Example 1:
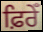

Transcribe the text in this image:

ਫ਼ਿਰੇਁ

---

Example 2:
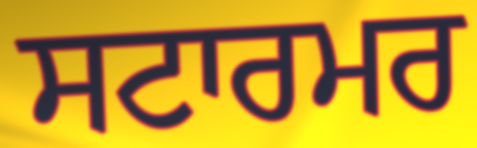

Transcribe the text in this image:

ਸਟਾਰਮਰ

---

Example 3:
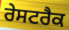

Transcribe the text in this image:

ਰੇਸਟਰੈਕ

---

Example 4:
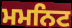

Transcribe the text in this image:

ਮਮਨਿਟ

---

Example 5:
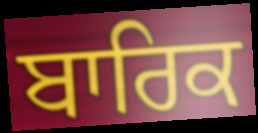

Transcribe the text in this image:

ਬਾਰਿਕ